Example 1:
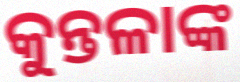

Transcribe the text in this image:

କୁନ୍ତଳାଙ୍କ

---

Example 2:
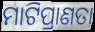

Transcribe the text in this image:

ମାଟିପ୍ରାଣତା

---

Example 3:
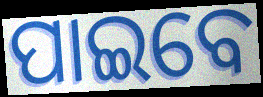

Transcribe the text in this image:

ପାଇବେ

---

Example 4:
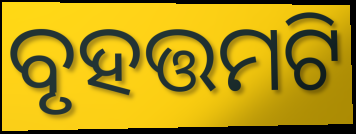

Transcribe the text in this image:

ବୃହତ୍ତମଟି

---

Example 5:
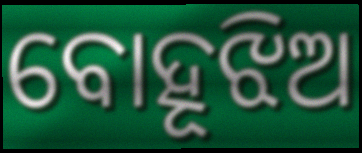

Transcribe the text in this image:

ବୋହୂଝିଅ